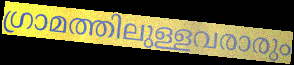
ഗ്രാമത്തിലുള്ളവരാരും